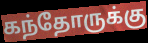
கந்தோருக்கு